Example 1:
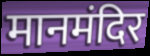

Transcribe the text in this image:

मानमंदिर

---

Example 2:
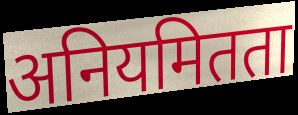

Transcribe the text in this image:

अनियमितता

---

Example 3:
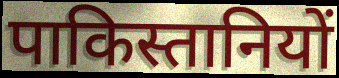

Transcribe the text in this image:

पाकिस्तानियों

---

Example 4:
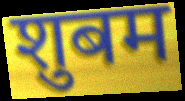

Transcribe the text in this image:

शुबम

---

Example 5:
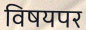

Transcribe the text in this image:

विषयपर